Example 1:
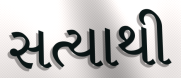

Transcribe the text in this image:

સત્યાથી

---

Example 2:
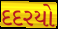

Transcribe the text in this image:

દદરયો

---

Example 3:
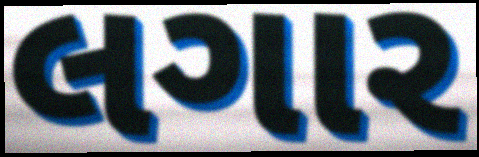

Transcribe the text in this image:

લગાર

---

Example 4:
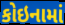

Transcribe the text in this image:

કોઇનામાં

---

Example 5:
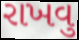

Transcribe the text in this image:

રાખવુ